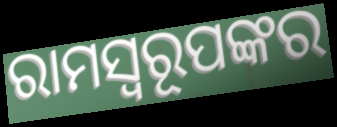
ରାମସ୍ୱରୂପଙ୍କର